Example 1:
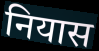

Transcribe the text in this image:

नियास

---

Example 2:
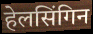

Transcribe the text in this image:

हेलसिंगिन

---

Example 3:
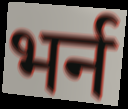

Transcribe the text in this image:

भर्न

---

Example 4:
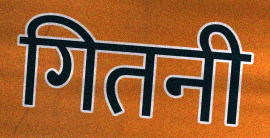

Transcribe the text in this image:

गितनी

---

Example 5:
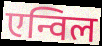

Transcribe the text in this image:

एन्विल